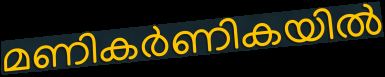
മണികർണികയിൽ